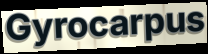
Gyrocarpus